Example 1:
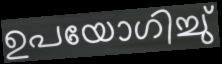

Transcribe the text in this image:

ഉപയോഗിച്ചു്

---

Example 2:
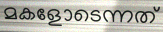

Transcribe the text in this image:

മകളോടെന്നത്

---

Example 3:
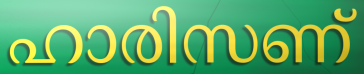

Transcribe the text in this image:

ഹാരിസണ്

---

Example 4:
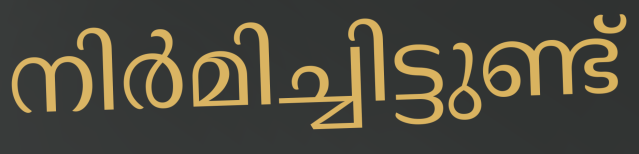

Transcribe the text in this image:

നിർമിച്ചിട്ടുണ്ട്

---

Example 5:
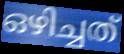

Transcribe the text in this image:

ഒഴിച്ചത്